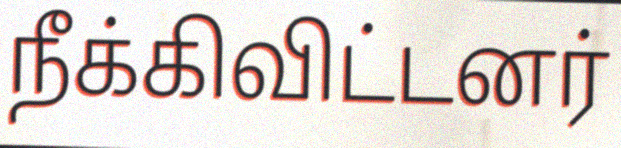
நீக்கிவிட்டனர்